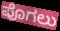
ಪೊಗಲು